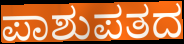
ಪಾಶುಪತದ